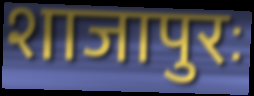
शाजापुरः